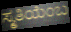
ಸ್ಮೃತಿಯೆಂಬ